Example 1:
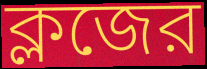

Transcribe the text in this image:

ক্লজের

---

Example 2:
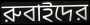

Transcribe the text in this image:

রুবাইদের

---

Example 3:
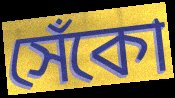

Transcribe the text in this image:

সেঁকো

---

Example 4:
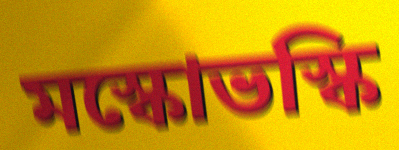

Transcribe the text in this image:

মস্কোভস্কি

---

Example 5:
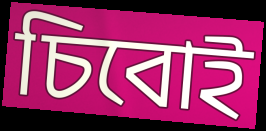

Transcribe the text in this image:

চিবোই